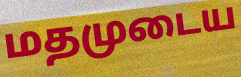
மதமுடைய